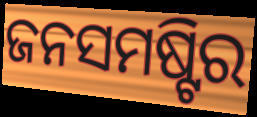
ଜନସମଷ୍ଟିର